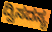
ದ್ವಿಸದಸ್ಯ